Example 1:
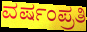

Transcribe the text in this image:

ವರ್ಷಂಪ್ರತಿ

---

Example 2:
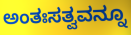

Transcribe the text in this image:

ಅಂತಃಸತ್ವವನ್ನೂ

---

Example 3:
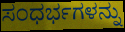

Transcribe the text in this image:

ಸಂಧರ್ಭಗಳನ್ನು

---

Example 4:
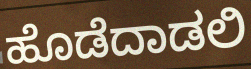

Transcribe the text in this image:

ಹೊಡೆದಾಡಲಿ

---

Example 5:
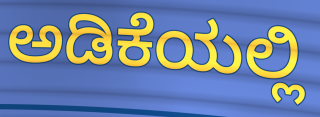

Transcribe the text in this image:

ಅಡಿಕೆಯಲ್ಲಿ